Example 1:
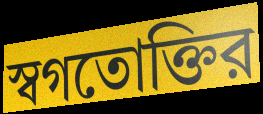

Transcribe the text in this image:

স্বগতোক্তির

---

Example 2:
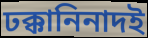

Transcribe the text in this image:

ঢক্কানিনাদই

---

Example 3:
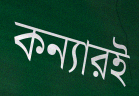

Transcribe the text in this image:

কন্যারই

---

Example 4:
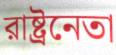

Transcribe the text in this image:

রাষ্ট্রনেতা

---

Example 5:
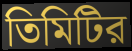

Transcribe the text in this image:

তিমিটির